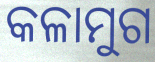
କଳାମୁଗ